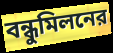
বন্ধুমিলনের